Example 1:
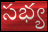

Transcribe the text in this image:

సభ్య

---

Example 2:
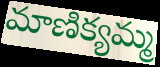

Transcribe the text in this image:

మాణిక్యమ్మ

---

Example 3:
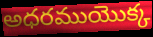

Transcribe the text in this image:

అధరముయొక్క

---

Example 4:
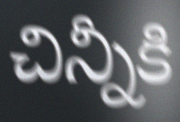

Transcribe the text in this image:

చిన్నీకి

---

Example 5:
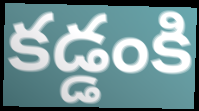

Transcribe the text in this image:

కడ్డంకి